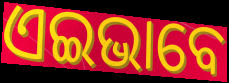
ଏଇଭାବେ